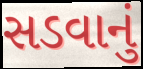
સડવાનું